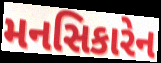
મનસિકારેન